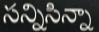
సన్నిసిన్నా